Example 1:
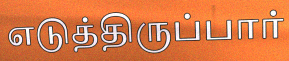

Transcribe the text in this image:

எடுத்திருப்பார்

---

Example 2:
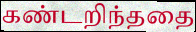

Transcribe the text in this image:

கண்டறிந்ததை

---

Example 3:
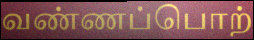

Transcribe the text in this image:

வண்ணப்பொற்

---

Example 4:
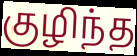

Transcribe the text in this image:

குழிந்த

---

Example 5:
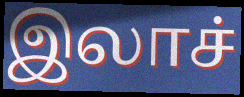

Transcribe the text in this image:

இலாச்